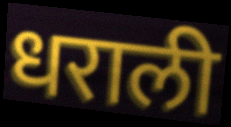
धराली